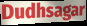
Dudhsagar